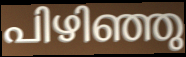
പിഴിഞ്ഞു